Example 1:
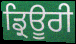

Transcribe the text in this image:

ਡ੍ਰਿਊਰੀ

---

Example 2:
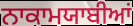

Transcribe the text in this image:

ਨਾਕਾਮਯਾਬੀਆਂ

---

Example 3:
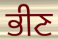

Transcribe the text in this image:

ਭੀਣ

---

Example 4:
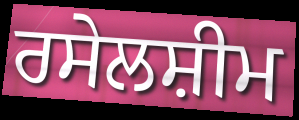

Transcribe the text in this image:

ਰਸੇਲਸ਼ੀਮ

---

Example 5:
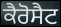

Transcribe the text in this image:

ਕੈਰੋਸੈਟ